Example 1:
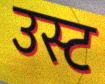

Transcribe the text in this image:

उस्ट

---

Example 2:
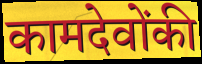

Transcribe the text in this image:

कामदेवोंकी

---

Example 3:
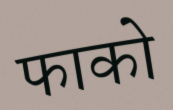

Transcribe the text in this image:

फाको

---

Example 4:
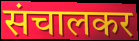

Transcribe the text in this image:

संचालकर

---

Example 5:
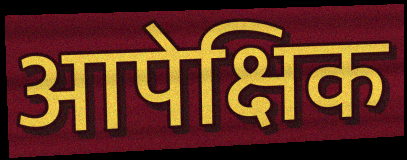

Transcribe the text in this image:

आपेक्षिक